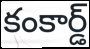
కంకార్డ్